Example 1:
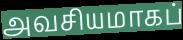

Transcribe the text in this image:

அவசியமாகப்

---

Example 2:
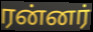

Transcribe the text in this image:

ரன்னர்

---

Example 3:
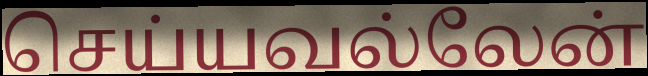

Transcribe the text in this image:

செய்யவல்லேன்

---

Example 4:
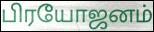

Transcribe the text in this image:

பிரயோஜனம்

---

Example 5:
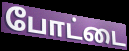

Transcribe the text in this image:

போட்டை